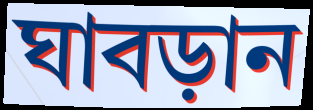
ঘাবড়ান